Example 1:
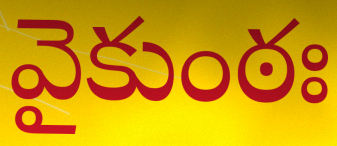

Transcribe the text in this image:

వైకుంఠః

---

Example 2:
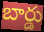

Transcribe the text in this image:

బార్డు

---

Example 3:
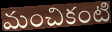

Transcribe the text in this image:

మంచికంటి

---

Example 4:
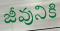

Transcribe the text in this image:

జీవునికి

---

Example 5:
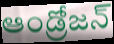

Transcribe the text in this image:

ఆండ్రోజన్